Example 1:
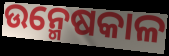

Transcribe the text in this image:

ଉନ୍ମେଷକାଳ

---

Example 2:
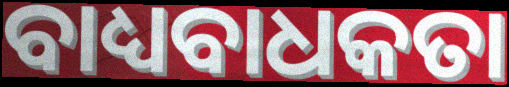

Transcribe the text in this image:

ବାଧ୍ୟବାଧକତା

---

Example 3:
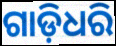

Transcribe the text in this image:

ଗାଡ଼ିଧରି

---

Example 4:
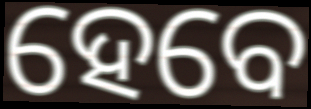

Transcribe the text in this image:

ହେବେ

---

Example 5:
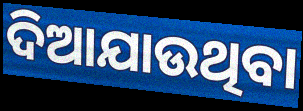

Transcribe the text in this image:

ଦିଆଯାଉଥିବା